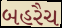
બહરૈચ